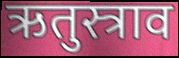
ऋतुस्त्राव